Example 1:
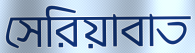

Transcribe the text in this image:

সেরিয়াবাত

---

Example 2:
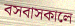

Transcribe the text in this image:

বসবাসকালে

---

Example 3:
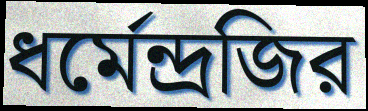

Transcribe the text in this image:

ধর্মেন্দ্রজির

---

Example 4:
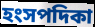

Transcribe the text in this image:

হংসপদিকা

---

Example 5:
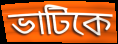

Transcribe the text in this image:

ভাটিকে